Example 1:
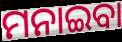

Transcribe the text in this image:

ମନାଇବା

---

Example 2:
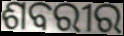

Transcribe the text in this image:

ଶବରୀର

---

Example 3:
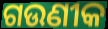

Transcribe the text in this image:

ଗଉଣୀକ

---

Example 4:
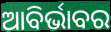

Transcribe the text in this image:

ଆବିର୍ଭାବର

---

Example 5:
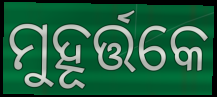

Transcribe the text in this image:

ମୁହୂର୍ତ୍ତକେ